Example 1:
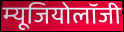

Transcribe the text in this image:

म्यूजियोलॉजी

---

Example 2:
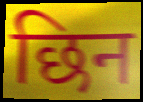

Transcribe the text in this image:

छिन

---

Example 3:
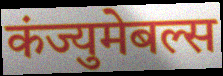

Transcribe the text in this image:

कंज्युमेबल्स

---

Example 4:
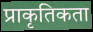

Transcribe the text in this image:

प्राकृतिकता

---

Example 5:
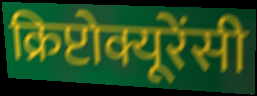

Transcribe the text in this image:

क्रिप्टोक्यूरेंसी